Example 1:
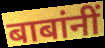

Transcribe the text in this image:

बाबांनीं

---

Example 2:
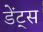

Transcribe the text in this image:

डेंट्स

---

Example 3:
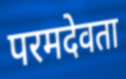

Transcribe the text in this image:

परमदेवता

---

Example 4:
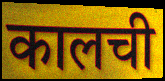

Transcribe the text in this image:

कालची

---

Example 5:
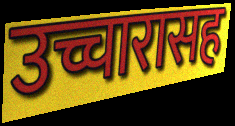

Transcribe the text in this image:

उच्चारासह